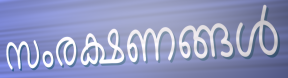
സംരക്ഷണങ്ങൾ